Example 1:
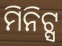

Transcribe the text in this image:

ମିନିଟ୍ସ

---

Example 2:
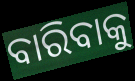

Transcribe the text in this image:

ବାରିବାକୁ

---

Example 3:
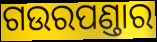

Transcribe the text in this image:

ଗଉରପଣ୍ଡାର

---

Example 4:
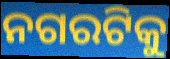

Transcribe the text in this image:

ନଗରଟିକୁ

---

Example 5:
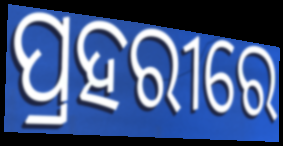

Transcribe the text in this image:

ପ୍ରହରୀରେ